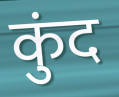
कुंद